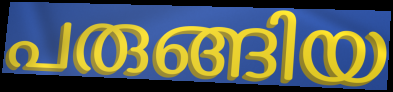
പരുങ്ങിയ